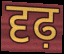
दृढ़